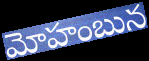
మోహంబున